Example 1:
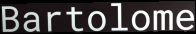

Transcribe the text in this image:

Bartolome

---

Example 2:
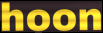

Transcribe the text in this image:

hoon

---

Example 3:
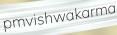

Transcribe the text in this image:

pmvishwakarma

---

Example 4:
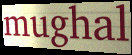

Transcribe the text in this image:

mughal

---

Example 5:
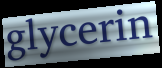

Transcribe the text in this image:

glycerin